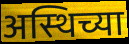
अस्थिच्या